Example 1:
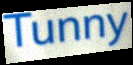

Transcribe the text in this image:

Tunny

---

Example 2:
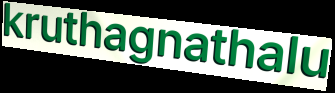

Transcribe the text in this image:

kruthagnathalu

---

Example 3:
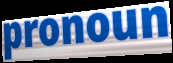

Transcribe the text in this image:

pronoun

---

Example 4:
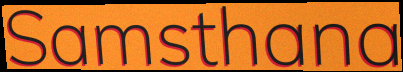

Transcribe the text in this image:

Samsthana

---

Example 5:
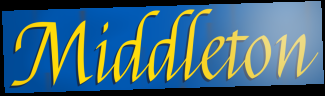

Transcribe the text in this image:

Middleton